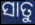
ସାତୁ